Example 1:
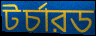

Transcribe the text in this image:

টর্চারড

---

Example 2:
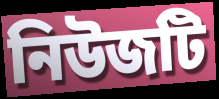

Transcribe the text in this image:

নিউজটি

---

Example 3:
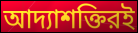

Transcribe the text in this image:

আদ্যাশক্তিরই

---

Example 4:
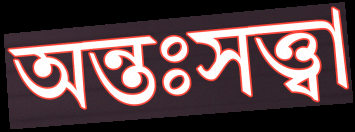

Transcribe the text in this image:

অন্তঃসত্ত্বা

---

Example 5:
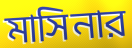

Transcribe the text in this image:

মাসিনার